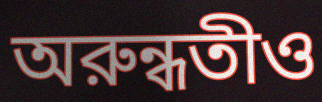
অরুন্ধতীও